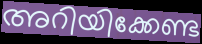
അറിയിക്കേണ്ട